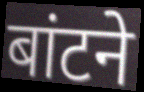
बांटने